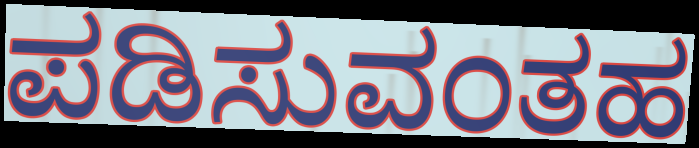
ಪಡಿಸುವಂತಹ